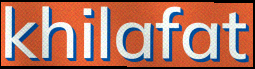
khilafat